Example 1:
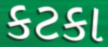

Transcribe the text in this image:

કટકા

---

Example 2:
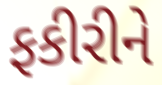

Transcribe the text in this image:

ફકીરીને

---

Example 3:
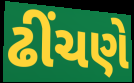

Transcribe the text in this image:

ઢીંચણે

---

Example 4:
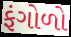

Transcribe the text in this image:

ફંગોળો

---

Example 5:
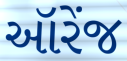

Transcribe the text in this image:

ઑરેંજ